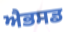
ਐਭਸਡ